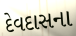
દેવદાસના